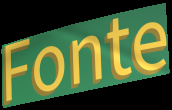
Fonte